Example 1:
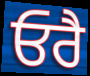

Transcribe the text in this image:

ਓਰੈ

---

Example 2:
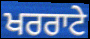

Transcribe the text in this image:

ਖਰਰਾਟੇ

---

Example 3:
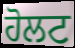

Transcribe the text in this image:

ਹੋਲਟ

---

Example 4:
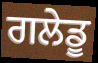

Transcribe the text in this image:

ਗਲੇਡੂ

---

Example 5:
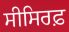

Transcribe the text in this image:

ਸੀਸਿਰਫ਼